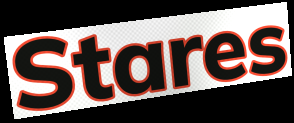
Stares